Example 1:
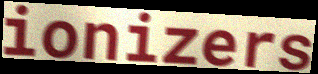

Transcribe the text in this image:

ionizers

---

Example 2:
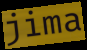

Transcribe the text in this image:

jima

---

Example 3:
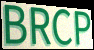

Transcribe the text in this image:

BRCP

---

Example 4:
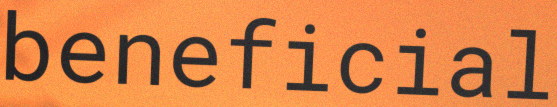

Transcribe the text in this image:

beneficial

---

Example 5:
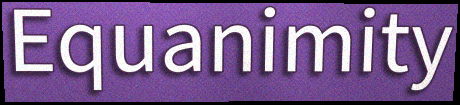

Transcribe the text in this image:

Equanimity